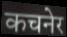
कचनेर